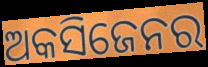
ଅକସିଜେନର